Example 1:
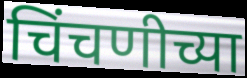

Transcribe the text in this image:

चिंचणीच्या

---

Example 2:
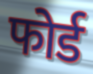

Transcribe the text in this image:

फोर्ड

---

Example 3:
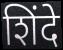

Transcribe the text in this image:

शिंदे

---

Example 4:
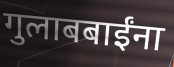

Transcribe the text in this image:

गुलाबबाईंना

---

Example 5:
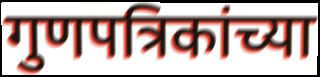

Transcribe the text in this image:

गुणपत्रिकांच्या